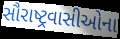
સૌરાષ્ટ્રવાસીઓના